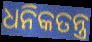
ଧନିକତନ୍ତ୍ର